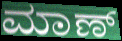
ಮಾಣ್